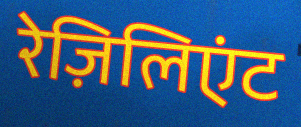
रेज़िलिएंट